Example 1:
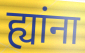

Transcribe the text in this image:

ह्यांना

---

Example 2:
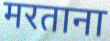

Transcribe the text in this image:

मरताना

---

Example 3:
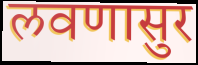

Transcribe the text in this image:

लवणासुर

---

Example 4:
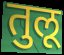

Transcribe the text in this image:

तुलू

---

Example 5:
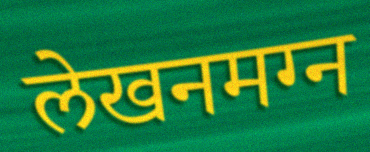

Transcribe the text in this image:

लेखनमग्न